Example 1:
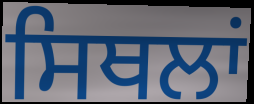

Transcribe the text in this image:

ਸਿਥਲਾਂ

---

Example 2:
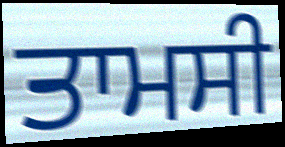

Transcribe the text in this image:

ਤਾਮਸੀ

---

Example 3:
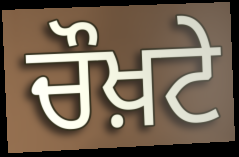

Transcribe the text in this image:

ਚੌਖ਼ਟੇ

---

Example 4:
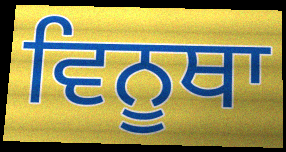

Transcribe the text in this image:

ਵਿਨੂਥਾ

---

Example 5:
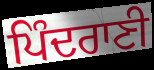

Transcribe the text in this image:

ਪਿੰਦਰਾਣੀ